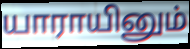
யாராயினும்